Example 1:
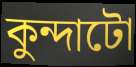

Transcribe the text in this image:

কুন্দাটো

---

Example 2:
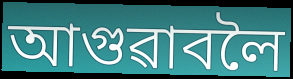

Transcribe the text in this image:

আগুৱাবলৈ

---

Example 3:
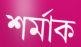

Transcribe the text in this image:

শৰ্মাক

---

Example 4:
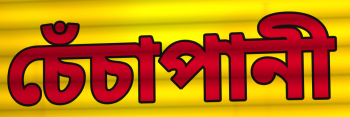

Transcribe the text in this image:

চেঁচাপানী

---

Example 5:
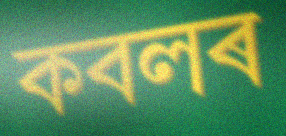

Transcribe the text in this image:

কবলৰ